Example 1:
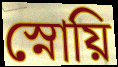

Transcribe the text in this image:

স্নোয়ি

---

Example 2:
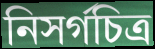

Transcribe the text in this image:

নিসর্গচিত্র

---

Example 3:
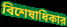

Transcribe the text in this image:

বিশেষাধিকার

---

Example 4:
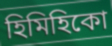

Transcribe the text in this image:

হিমিহিকো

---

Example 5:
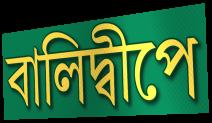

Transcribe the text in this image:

বালিদ্বীপে